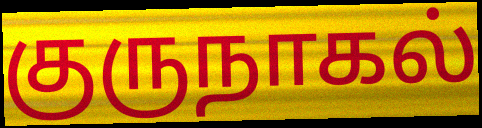
குருநாகல்